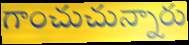
గాంచుచున్నారు